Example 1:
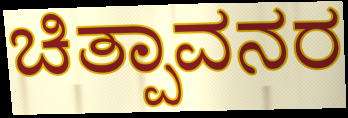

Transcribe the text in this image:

ಚಿತ್ಪಾವನರ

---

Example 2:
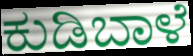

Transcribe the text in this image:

ಕುಡಿಬಾಳೆ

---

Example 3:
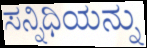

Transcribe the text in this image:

ಸನ್ನಿಧಿಯನ್ನು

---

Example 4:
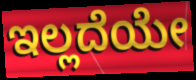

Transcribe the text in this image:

ಇಲ್ಲದೆಯೇ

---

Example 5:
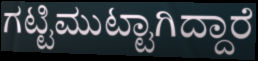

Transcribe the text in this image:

ಗಟ್ಟಿಮುಟ್ಟಾಗಿದ್ದಾರೆ